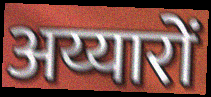
अय्यारों